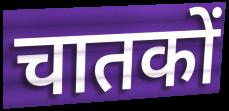
चातकों